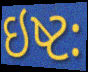
ઇષ્ટઃ